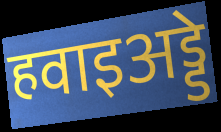
हवाइअड्डे